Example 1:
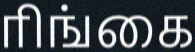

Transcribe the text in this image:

ரிங்கை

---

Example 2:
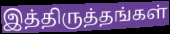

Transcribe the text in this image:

இத்திருத்தங்கள்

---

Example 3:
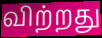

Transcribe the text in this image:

விற்றது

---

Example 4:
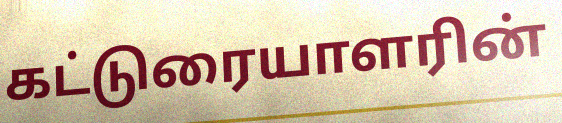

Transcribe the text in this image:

கட்டுரையாளரின்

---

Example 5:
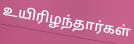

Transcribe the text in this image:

உயிரிழந்தார்கள்